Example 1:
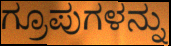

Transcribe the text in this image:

ಗ್ರೂಪುಗಳನ್ನು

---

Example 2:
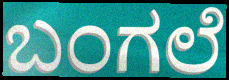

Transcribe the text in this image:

ಬಂಗಲೆ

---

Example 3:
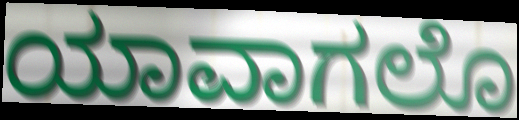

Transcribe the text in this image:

ಯಾವಾಗಲೊ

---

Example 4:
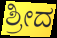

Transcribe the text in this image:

ಶ್ರೀದ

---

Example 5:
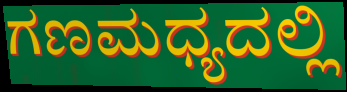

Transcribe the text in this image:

ಗಣಮಧ್ಯದಲ್ಲಿ